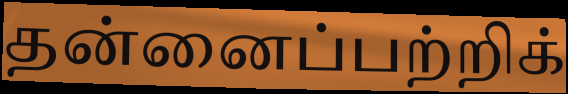
தன்னைப்பற்றிக்